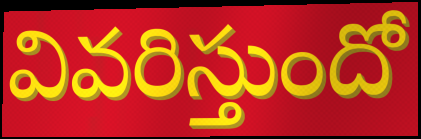
వివరిస్తుందో